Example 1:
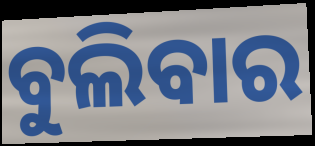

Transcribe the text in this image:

ବୁଲିବାର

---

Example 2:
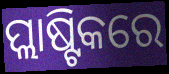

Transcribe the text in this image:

ପ୍ଲାଷ୍ଟିକରେ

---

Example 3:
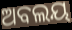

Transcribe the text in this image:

ଅବଲୟ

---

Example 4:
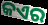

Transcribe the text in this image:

କଏର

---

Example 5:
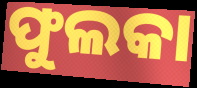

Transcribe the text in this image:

ଫୁଲକା